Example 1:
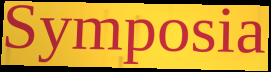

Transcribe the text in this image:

Symposia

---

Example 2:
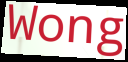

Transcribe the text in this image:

Wong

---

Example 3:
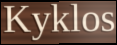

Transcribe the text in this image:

Kyklos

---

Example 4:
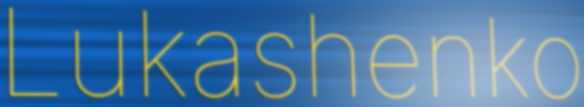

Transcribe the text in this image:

Lukashenko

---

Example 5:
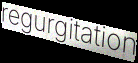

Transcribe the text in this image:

regurgitation